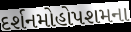
દર્શનમોહોપશમના